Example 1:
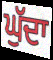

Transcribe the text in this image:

ਘੁੱਦਾ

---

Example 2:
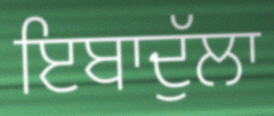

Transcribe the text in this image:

ਇਬਾਦੁੱਲਾ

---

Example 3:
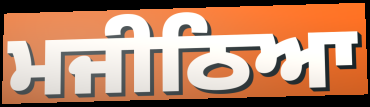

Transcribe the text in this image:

ਮਜੀਠਿਆ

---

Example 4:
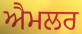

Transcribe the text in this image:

ਐਮਲਰ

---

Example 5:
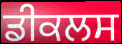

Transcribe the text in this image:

ਡੀਕਲਸ